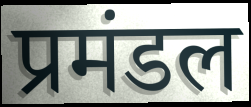
प्रमंडल